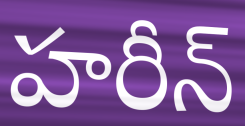
హరీన్